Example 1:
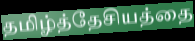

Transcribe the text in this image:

தமிழ்த்தேசியத்தை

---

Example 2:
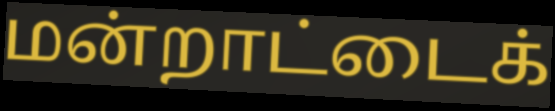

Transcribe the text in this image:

மன்றாட்டைக்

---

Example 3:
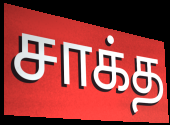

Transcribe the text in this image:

சாக்த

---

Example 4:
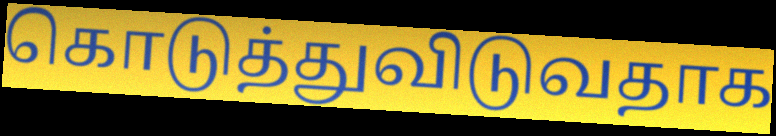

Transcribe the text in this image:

கொடுத்துவிடுவதாக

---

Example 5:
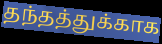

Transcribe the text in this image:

தந்தத்துக்காக